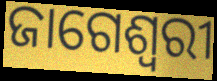
ଜାଗେଶ୍ୱରୀ